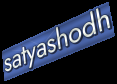
satyashodh